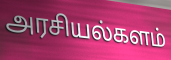
அரசியல்களம்